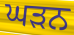
ਘੜਨ